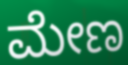
ಮೇಣ